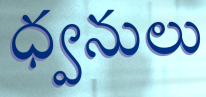
ధ్వనులు